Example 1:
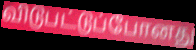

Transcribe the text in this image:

விடுபட்டுப்போனது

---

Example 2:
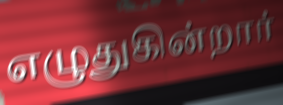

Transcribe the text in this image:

எழுதுகின்றார்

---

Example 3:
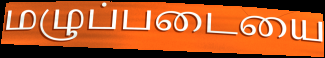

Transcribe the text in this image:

மழுப்படையை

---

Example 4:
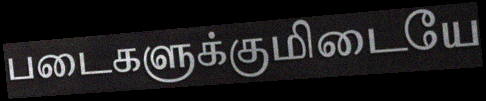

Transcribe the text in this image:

படைகளுக்குமிடையே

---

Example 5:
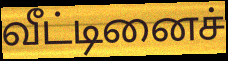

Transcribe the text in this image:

வீட்டினைச்